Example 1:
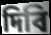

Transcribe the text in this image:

দিবি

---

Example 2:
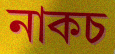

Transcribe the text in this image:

নাকচ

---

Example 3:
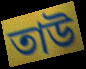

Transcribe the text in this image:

তাউ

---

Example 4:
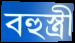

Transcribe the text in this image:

বহুস্ত্ৰী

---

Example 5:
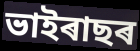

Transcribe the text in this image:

ভাইৰাছৰ